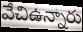
వేచిఉన్నారు